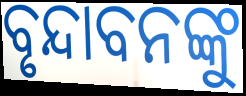
ବୃନ୍ଦାବନଙ୍କୁ